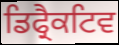
ਡਿਫ੍ਰੈਕਟਿਵ